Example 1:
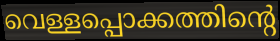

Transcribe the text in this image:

വെള്ളപ്പൊക്കത്തിന്റെ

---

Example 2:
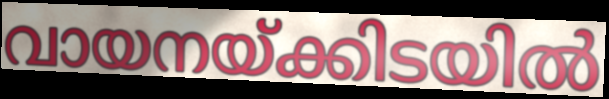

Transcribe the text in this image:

വായനയ്ക്കിടയിൽ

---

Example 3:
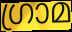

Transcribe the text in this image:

ഗ്രാമ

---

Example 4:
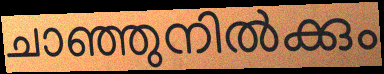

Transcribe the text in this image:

ചാഞ്ഞുനിൽക്കും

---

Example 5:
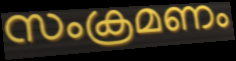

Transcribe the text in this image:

സംക്രമണം